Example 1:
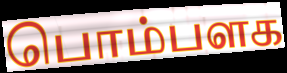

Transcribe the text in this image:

பொம்பளக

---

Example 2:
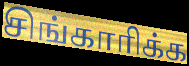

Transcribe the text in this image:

சிங்காரிக்க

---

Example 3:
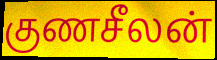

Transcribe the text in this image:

குணசீலன்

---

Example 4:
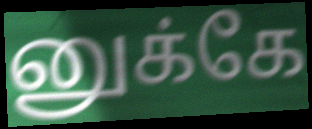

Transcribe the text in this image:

னுக்கே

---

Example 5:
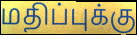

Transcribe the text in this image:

மதிப்புக்கு